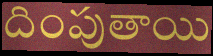
దింపుతాయి